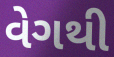
વેગથી